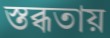
স্তব্ধতায়